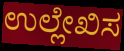
ಉಲ್ಲೇಖಿಸ